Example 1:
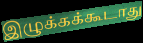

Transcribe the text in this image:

இழுக்கக்கூடாது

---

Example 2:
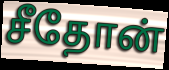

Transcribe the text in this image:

சீதோன்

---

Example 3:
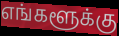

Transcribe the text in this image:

எங்களூக்கு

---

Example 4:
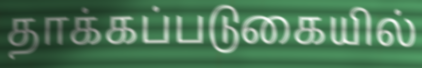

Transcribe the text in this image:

தாக்கப்படுகையில்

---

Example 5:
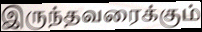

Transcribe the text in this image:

இருந்தவரைக்கும்